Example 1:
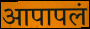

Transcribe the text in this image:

आपापलं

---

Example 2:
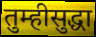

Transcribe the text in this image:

तुम्हीसुद्धा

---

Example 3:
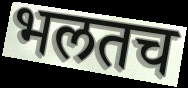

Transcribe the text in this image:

भलतच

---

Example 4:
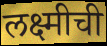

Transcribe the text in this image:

लक्ष्मीची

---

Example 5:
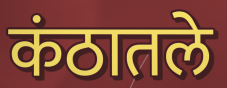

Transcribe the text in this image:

कंठातले